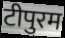
टीपुरम